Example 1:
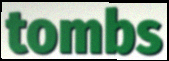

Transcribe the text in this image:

tombs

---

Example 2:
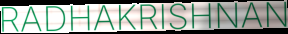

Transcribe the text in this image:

RADHAKRISHNAN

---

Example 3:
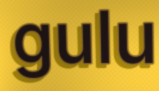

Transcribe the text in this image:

gulu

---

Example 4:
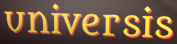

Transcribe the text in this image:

universis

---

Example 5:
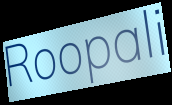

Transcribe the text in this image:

Roopali